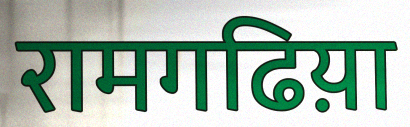
रामगढिय़ा